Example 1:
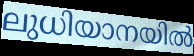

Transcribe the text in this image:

ലുധിയാനയിൽ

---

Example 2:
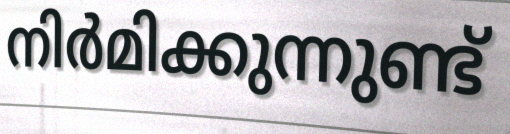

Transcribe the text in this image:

നിർമിക്കുന്നുണ്ട്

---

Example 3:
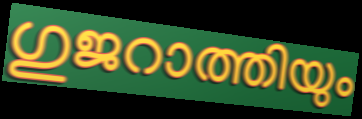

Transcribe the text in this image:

ഗുജറാത്തിയും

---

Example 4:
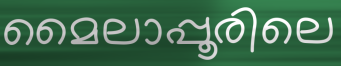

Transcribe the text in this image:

മൈലാപ്പൂരിലെ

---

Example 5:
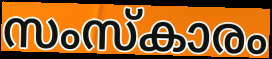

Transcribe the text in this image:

സംസ്കാരം